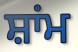
ਸ਼ਾਂਮ